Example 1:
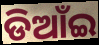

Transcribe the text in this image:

ଡିଆଁଇ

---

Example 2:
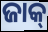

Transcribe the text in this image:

ଜାକ୍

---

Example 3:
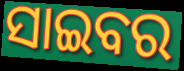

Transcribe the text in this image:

ସାଇବର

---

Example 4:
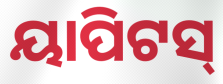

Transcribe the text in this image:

ୟାପିଟସ୍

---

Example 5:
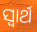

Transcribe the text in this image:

ସ୍ୱାର୍ଥ